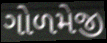
ગોળમેજી